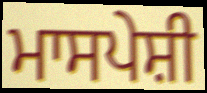
ਮਾਸਪੇਸ਼ੀ